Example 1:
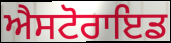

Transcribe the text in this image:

ਐਸਟੋਰਾਇਡ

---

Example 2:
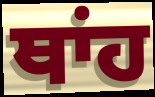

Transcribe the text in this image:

ਥਾਂਹ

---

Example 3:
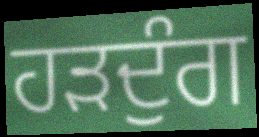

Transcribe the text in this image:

ਹੜਦੁੰਗ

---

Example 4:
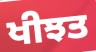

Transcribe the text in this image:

ਖੀਝਤ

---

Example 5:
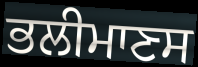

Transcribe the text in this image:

ਭਲੀਮਾਣਸ